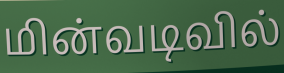
மின்வடிவில்